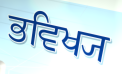
ਭਵਿਖ੍ਯ